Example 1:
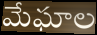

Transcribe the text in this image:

మేఘాల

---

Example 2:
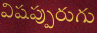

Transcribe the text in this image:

విషప్పురుగు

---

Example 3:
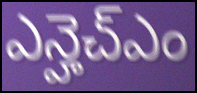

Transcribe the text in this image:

ఎన్హెచ్ఎం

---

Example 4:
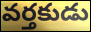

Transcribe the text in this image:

వర్తకుడు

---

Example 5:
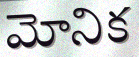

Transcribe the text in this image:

మోనిక